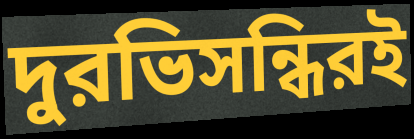
দুরভিসন্ধিরই